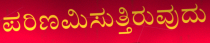
ಪರಿಣಮಿಸುತ್ತಿರುವುದು